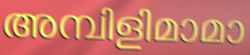
അമ്പിളിമാമാ